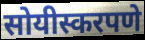
सोयीस्करपणे